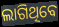
ଲାଗିଥିବେ